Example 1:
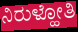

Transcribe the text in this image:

ನಿರುಳ್ಹೋತಿ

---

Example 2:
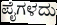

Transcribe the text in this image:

ಪೈಗಳದು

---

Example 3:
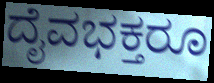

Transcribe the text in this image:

ದೈವಭಕ್ತರೂ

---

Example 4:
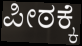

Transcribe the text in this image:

ಪೀಠಕ್ಕೆ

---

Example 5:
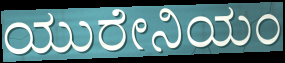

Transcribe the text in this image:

ಯುರೇನಿಯಂ